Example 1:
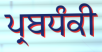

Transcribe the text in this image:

ਪ੍ਰਬਧੰਕੀ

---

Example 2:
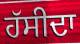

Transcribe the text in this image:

ਹੱਸੀਦਾ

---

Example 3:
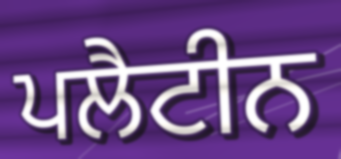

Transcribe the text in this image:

ਪਲੈਟੀਨ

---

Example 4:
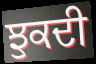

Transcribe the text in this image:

ਝੁਕਦੀ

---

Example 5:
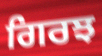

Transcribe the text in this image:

ਗਿਰਝ